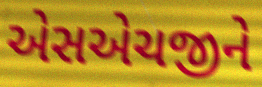
એસએચજીને